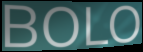
BOLO